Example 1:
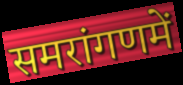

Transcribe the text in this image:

समरांगणमें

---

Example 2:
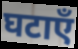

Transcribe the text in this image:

घटाएँ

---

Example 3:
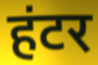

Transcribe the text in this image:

हंटर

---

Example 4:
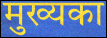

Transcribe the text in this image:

मुख्यका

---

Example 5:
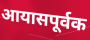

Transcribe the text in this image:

आयासपूर्वक